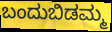
ಬಂದುಬಿಡಮ್ಮ